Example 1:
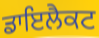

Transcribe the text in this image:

ਡਾਇਲੈਕਟ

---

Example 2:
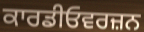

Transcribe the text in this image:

ਕਾਰਡੀਓਵਰਜ਼ਨ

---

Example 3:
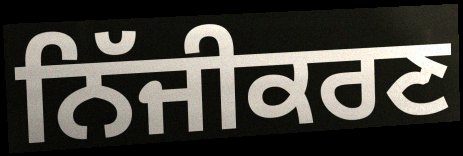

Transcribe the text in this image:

ਨਿੱਜੀਕਰਣ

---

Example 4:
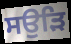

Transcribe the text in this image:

ਸਉੜਿ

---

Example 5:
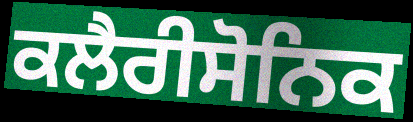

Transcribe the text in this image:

ਕਲੈਰੀਸੋਨਿਕ